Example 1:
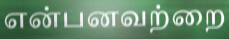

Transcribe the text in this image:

என்பனவற்றை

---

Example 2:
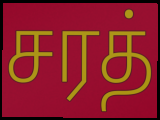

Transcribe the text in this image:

சரத்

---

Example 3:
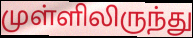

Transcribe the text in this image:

முள்ளிலிருந்து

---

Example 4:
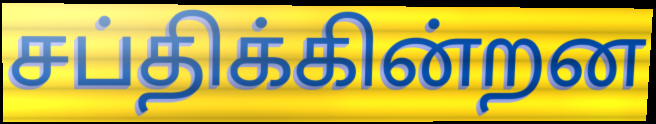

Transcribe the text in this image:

சப்திக்கின்றன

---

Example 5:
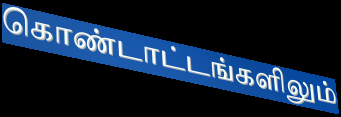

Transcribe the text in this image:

கொண்டாட்டங்களிலும்